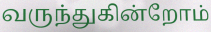
வருந்துகின்றோம்